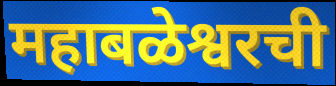
महाबळेश्वरची